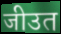
जीउत